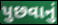
પુછવાનું